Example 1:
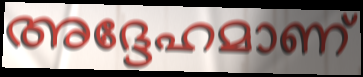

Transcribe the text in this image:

അദ്ദേഹമാണ്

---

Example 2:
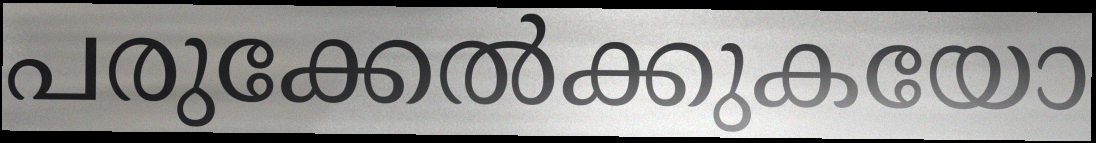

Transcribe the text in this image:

പരുക്കേൽക്കുകയോ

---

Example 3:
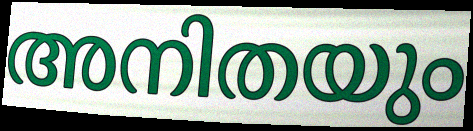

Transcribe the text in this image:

അനിതയും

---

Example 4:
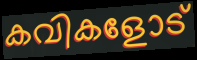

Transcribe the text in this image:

കവികളോട്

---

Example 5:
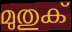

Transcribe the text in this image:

മുതുക്